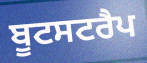
ਬੂਟਸਟਰੈਪ